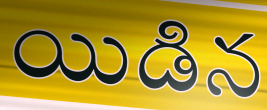
యిడిన